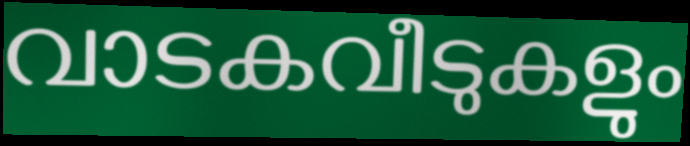
വാടകവീടുകളും